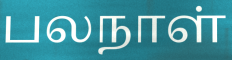
பலநாள்